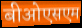
बीओएसएम